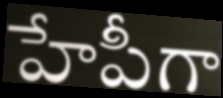
హేపీగా